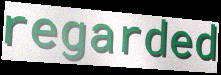
regarded